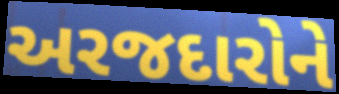
અરજદારોને